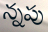
న్నపు